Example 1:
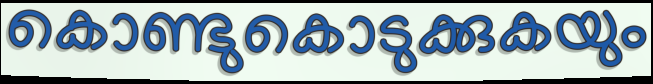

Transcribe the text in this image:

കൊണ്ടുകൊടുക്കുകയും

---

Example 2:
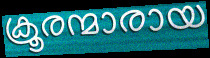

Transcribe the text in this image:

ക്രൂരന്മാരായ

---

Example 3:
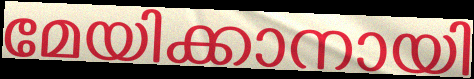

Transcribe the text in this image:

മേയിക്കാനായി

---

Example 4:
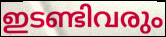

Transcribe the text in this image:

ഇടണ്ടിവരും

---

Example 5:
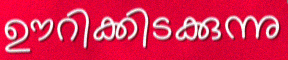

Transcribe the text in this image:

ഊറിക്കിടക്കുന്നു